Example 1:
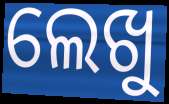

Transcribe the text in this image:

ଲେଖୁ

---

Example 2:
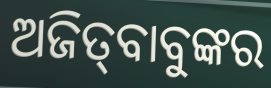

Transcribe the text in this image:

ଅଜିତ୍‍ବାବୁଙ୍କର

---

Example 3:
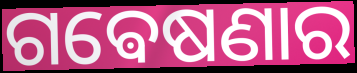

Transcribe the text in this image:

ଗଵେଷଣାର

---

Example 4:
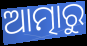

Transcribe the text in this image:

ଆତ୍ମାରୁ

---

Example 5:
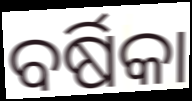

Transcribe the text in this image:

ବର୍ଷିକା